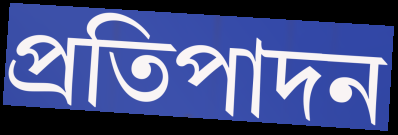
প্ৰতিপাদন